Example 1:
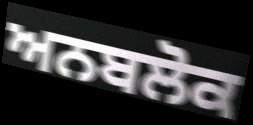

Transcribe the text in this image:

ਅਨਬਲੋਕ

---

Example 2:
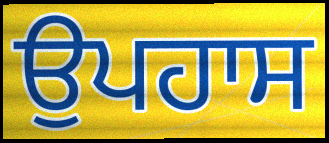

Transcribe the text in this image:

ਉਪਹਾਸ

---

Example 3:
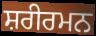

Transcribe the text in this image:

ਸ਼ਰੀਰਮਨ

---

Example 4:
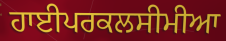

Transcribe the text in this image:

ਹਾਈਪਰਕਲਸੀਮੀਆ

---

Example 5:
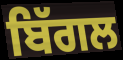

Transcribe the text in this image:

ਬਿੱਗਲ